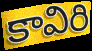
కావిరి